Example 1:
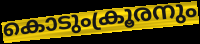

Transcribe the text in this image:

കൊടുംക്രൂരനും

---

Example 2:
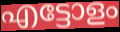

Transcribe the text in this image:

എട്ടോളം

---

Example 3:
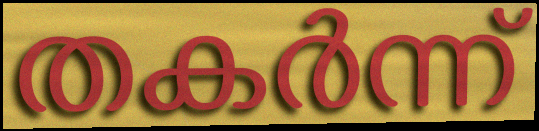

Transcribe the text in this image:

തകർന്ന്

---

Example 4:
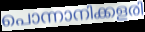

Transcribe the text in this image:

പൊന്നാനിക്കളരി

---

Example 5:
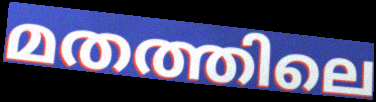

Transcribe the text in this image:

മതത്തിലെ